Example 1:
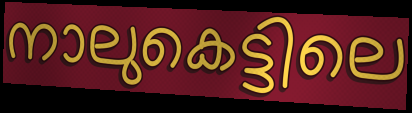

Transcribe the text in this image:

നാലുകെട്ടിലെ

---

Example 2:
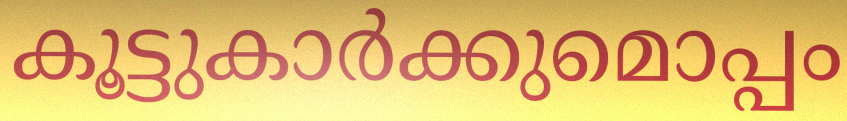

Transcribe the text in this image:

കൂട്ടുകാർക്കുമൊപ്പം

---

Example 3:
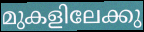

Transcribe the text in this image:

മുകളിലേക്കു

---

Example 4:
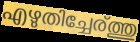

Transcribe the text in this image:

എഴുതിച്ചേര്ത്തു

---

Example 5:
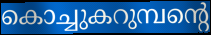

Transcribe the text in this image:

കൊച്ചുകറുമ്പന്റെ